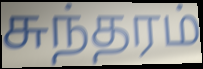
சுந்தரம்